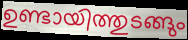
ഉണ്ടായിത്തുടങ്ങും